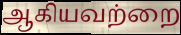
ஆகியவற்றை